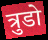
त्रुडो